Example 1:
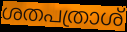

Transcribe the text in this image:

ശതപത്രാശ്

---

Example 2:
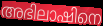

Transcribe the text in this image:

അഭിലാഷിനെ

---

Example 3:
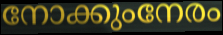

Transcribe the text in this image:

നോക്കുംനേരം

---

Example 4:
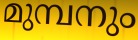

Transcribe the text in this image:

മുമ്പനും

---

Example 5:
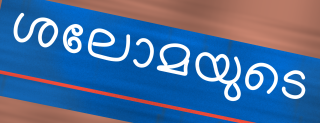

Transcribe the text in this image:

ശലോമയുടെ